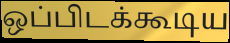
ஒப்பிடக்கூடிய